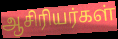
ஆசிரியர்கள்